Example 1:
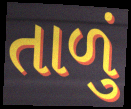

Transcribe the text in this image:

તાળું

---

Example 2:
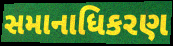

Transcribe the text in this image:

સમાનાધિકરણ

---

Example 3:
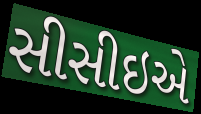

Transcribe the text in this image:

સીસીઇએ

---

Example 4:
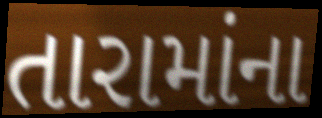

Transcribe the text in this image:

તારામાંના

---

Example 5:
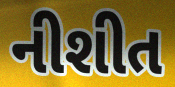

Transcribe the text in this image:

નીશીત